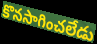
కొనసాగించలేడు